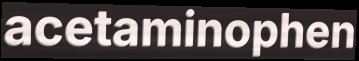
acetaminophen